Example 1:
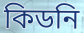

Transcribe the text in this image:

কিডনি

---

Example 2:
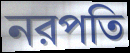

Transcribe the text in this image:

নরপতি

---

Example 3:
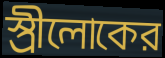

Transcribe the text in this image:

স্ত্রীলোকের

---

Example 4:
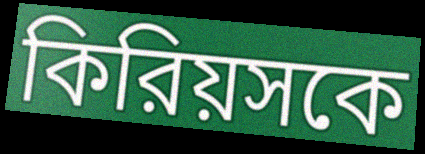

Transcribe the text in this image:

কিরিয়সকে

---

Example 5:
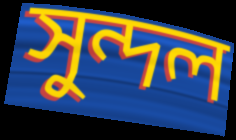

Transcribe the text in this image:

সুন্দল